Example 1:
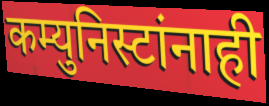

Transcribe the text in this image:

कम्युनिस्टांनाही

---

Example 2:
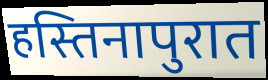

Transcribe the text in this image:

हस्तिनापुरात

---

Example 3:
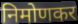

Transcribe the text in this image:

निमोणकर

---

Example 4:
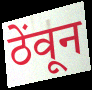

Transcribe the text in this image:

ठेंवून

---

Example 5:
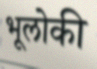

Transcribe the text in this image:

भूलोकी